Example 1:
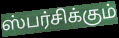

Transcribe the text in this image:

ஸ்பர்சிக்கும்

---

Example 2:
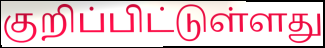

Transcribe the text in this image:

குறிப்பிட்டுள்ளது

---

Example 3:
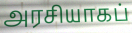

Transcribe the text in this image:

அரசியாகப்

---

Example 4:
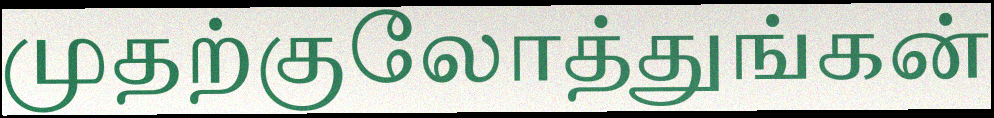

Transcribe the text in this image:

முதற்குலோத்துங்கன்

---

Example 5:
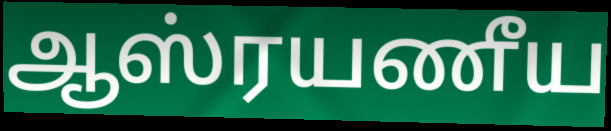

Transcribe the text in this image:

ஆஸ்ரயணீய